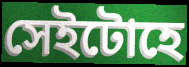
সেইটোহে